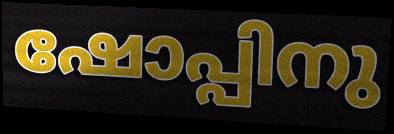
ഷോപ്പിനു